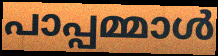
പാപ്പമ്മാൾ